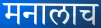
मनालाच